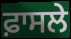
ਫ਼ਾਸਲੇ